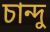
চান্দু